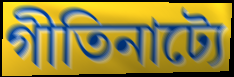
গীতিনাট্যে